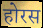
होरस